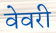
वेवरी